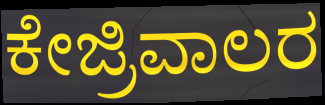
ಕೇಜ್ರಿವಾಲರ